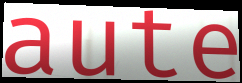
aute